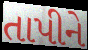
તાપીને